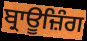
ਬ੍ਰਾਊਜ਼ਿੰਗ